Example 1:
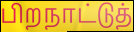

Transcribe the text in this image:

பிறநாட்டுத்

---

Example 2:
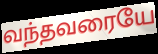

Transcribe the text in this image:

வந்தவரையே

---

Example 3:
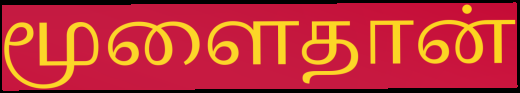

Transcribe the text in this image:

மூளைதான்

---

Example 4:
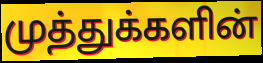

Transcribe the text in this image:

முத்துக்களின்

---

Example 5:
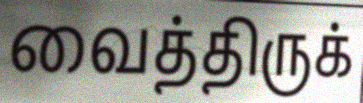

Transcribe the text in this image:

வைத்திருக்